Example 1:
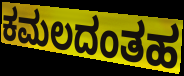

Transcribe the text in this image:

ಕಮಲದಂತಹ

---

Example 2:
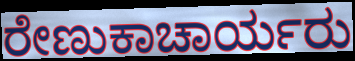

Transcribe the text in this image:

ರೇಣುಕಾಚಾರ್ಯರು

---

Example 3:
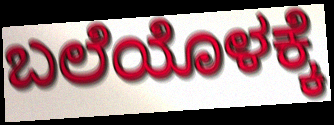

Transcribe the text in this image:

ಬಲೆಯೊಳಕ್ಕೆ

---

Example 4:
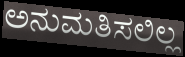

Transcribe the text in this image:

ಅನುಮತಿಸಲಿಲ್ಲ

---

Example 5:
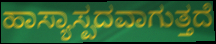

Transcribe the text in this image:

ಹಾಸ್ಯಾಸ್ಪದವಾಗುತ್ತದೆ